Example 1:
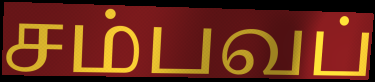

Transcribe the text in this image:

சம்பவப்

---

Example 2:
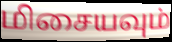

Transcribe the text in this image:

மிசையவும்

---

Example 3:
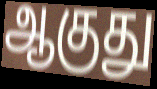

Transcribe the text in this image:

ஆகுது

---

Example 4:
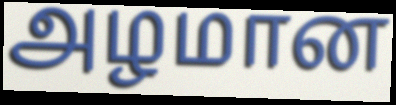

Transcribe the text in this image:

அழமான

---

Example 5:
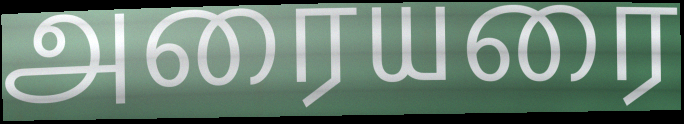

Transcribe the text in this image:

அரையரை